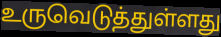
உருவெடுத்துள்ளது